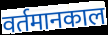
वर्तमानकाल